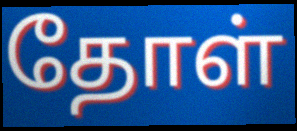
தோள்